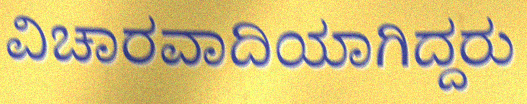
ವಿಚಾರವಾದಿಯಾಗಿದ್ದರು